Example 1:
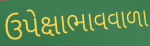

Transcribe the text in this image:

ઉપેક્ષાભાવવાળા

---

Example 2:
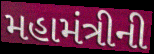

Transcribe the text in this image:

મહામંત્રીની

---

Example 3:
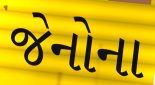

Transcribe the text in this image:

જેનોના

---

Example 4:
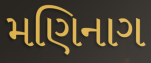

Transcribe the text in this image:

મણિનાગ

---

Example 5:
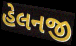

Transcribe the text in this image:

હેલનજી